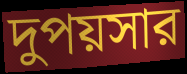
দুপয়সার